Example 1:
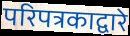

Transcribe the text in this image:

परिपत्रकाद्वारे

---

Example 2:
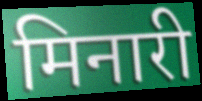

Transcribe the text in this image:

मिनारी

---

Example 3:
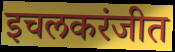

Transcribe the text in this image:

इचलकरंजीत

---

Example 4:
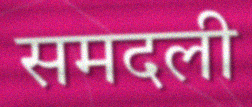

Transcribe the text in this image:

समदली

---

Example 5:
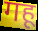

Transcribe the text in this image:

गहू